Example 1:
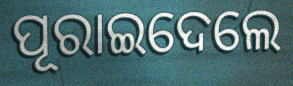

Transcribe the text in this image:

ପୂରାଇଦେଲେ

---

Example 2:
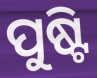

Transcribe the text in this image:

ପୁଷ୍ଟି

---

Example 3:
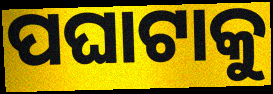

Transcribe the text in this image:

ପଘାଟାକୁ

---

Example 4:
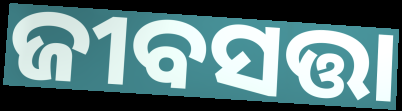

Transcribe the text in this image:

ଜୀବସତ୍ତା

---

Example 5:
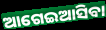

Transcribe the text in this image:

ଆଗେଇଆସିବା